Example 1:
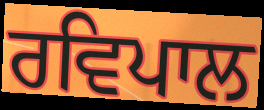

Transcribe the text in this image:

ਰਵਿਪਾਲ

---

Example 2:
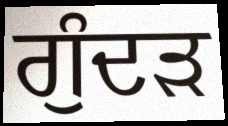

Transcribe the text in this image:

ਗੁੰਦੜ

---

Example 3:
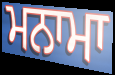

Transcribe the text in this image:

ਮਨਾਮਾ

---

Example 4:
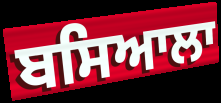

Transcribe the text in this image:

ਬਸਿਆਲਾ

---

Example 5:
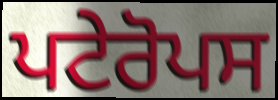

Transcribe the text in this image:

ਪਟੇਰੋਪਸ